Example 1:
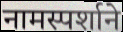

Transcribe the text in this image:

नामस्पर्शाने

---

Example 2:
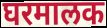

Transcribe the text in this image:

घरमालक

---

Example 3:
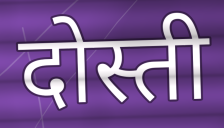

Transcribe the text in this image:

दोस्ती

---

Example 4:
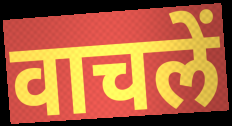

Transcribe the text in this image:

वाचलें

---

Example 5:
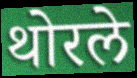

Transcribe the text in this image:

थोरले